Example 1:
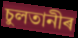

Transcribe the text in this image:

চুলতানীৰ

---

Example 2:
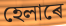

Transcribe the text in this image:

হেলাৰে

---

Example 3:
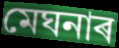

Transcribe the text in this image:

মেঘনাৰ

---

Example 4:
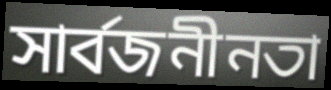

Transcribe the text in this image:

সাৰ্বজনীনতা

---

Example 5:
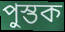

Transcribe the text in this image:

পুস্তক